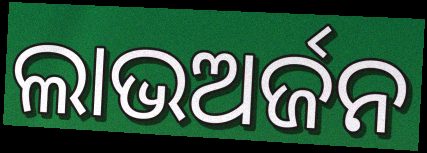
ଲାଭଅର୍ଜନ